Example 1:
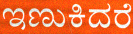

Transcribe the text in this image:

ಇಣುಕಿದರೆ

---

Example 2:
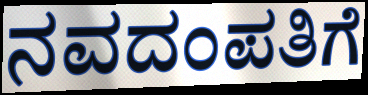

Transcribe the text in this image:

ನವದಂಪತಿಗೆ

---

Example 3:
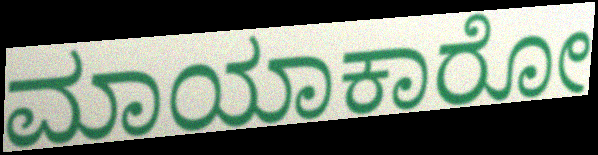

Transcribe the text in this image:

ಮಾಯಾಕಾರೋ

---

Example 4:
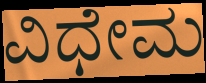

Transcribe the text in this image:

ವಿಧೇಮ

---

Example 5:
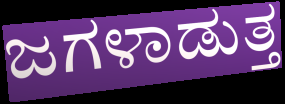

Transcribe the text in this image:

ಜಗಳಾಡುತ್ತ